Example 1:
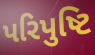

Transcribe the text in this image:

પરિપુષ્ટિ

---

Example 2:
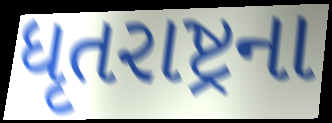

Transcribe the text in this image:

ધૃતરાષ્ટ્રના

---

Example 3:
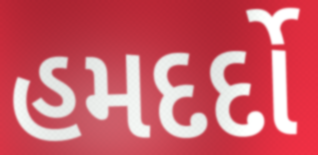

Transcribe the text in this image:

હમદર્દો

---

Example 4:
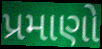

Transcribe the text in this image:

પ્રમાણો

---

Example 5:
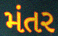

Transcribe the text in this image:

મંતર